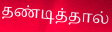
தண்டித்தால்